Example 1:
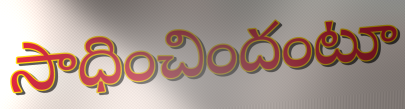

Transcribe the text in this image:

సాధించిందంటూ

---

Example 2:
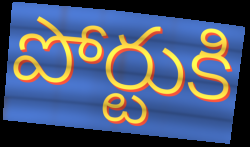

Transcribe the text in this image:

పోర్టుకి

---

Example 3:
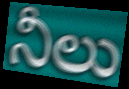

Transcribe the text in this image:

నీలు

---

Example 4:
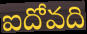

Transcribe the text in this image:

ఐదోవది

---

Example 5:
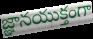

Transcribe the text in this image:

జ్ఞానయుక్తంగా